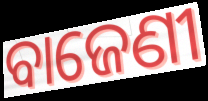
ବାଜେଣୀ